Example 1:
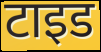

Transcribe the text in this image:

टाइड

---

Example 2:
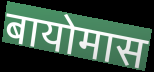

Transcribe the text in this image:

बायोमास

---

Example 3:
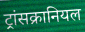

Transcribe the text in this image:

ट्रांसक्रानियल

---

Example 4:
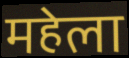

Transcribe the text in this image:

महेला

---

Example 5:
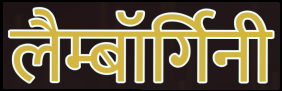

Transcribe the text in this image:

लैम्बॉर्गिनी